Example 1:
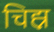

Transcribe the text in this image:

चिह्न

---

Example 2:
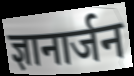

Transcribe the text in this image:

ज्ञानार्जन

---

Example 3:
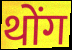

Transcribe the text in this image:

थोंग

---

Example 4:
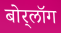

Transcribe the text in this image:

बोर्‌लॉग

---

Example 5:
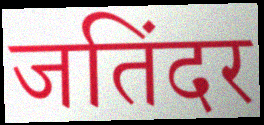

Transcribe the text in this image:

जतिंदर